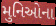
મુનિઓના